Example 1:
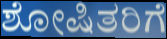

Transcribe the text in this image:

ಶೋಷಿತರಿಗೆ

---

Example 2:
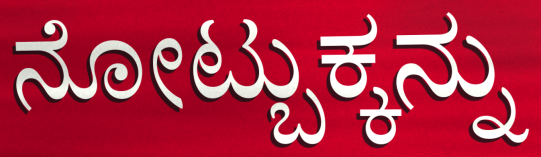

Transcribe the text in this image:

ನೋಟ್ಬುಕ್ಕನ್ನು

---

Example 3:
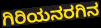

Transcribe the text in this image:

ಗಿರಿಯನರಗಿನ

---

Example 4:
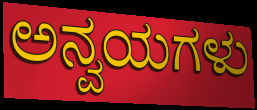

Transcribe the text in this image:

ಅನ್ವಯಗಳು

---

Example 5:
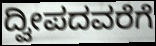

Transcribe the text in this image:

ದ್ವೀಪದವರೆಗೆ